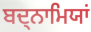
ਬਦ੍ਨਾਮਿਯਾਂ